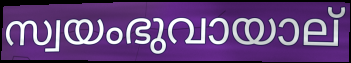
സ്വയംഭുവായാല്